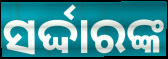
ସର୍ଦ୍ଦାରଙ୍କ